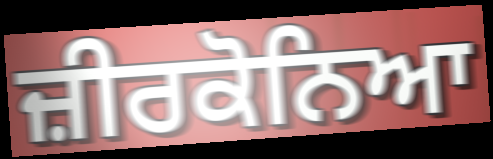
ਜ਼ੀਰਕੋਨਿਆ